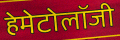
हेमेटोलॉजी